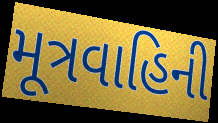
મૂત્રવાહિની